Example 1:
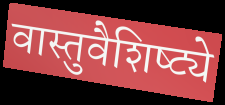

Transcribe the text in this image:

वास्तुवैशिष्ट्ये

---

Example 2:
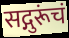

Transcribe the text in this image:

सद्गुरूंचं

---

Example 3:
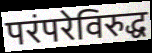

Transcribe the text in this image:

परंपरेविरुद्ध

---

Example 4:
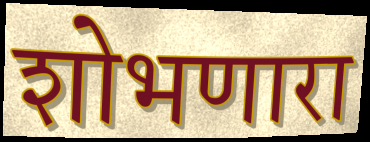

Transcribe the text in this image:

शोभणारा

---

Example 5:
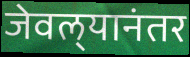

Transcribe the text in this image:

जेवल्यानंतर